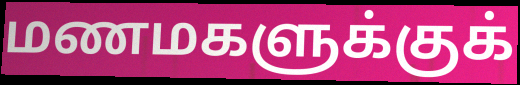
மணமகளுக்குக்